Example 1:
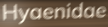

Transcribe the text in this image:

Hyaenidae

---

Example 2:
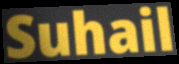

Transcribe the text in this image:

Suhail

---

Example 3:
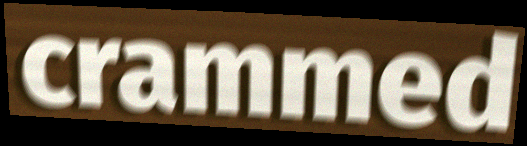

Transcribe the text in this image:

crammed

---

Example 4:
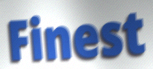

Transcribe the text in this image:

Finest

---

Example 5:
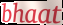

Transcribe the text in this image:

bhaat